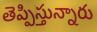
తెప్పిస్తున్నారు